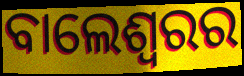
ବାଲେଶ୍ୱରର